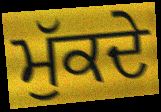
ਮੁੱਕਦੇ